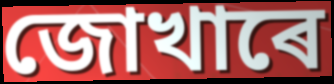
জোখাৰে